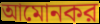
আমোনকর